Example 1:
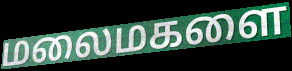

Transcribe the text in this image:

மலைமகளை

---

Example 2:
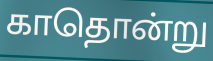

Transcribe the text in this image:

காதொன்று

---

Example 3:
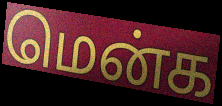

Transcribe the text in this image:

மென்க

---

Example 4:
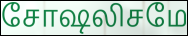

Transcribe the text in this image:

சோஷலிசமே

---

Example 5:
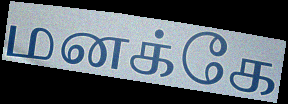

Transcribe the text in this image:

மனக்கே